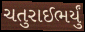
ચતુરાઈભર્યું